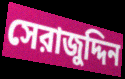
সেরাজুদ্দিন